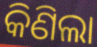
କିଣିଲା